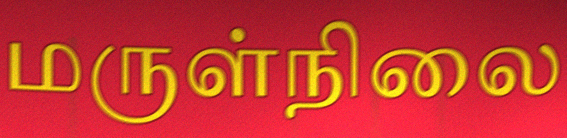
மருள்நிலை